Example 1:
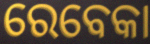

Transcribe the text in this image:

ରେବେକା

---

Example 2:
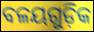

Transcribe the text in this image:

ବଳୟଗୁଡ଼ିକ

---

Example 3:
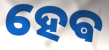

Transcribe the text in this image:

ହେଵ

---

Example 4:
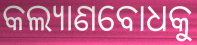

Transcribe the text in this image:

କଲ୍ୟାଣବୋଧକୁ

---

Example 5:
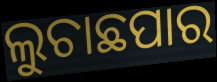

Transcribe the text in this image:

ଲୁଚାଛପାର